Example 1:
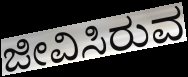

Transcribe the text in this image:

ಜೀವಿಸಿರುವ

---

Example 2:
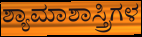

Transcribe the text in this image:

ಶ್ಯಾಮಾಶಾಸ್ತ್ರಿಗಳ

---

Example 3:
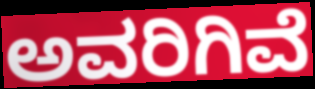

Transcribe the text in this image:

ಅವರಿಗಿವೆ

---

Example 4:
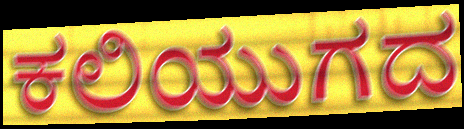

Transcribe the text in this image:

ಕಲಿಯುಗದ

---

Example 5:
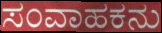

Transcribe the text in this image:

ಸಂವಾಹಕನು